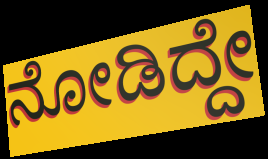
ನೋಡಿದ್ದೇ